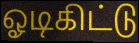
ஓடிகிட்டு